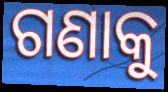
ଗଣାକୁ